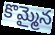
కొమ్మైన